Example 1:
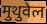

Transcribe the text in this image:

मुथुवेल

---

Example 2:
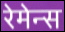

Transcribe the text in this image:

रेमेन्स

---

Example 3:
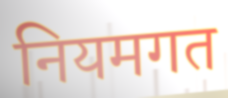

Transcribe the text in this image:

नियमगत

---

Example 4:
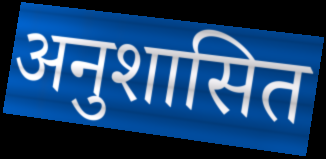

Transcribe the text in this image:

अनुशासित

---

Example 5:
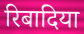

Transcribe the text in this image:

रिबादिया